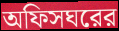
অফিসঘরের